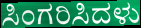
ಸಿಂಗರಿಸಿದಳು